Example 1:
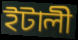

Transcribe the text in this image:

ইটালী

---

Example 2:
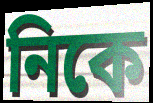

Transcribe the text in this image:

নিকে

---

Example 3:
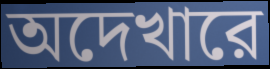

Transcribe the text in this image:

অদেখারে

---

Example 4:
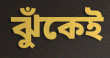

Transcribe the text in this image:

ঝুঁকেই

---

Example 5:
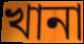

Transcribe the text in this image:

খানা